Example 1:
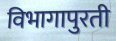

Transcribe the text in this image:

विभागापुरती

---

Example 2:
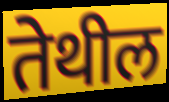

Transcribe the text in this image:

तेथील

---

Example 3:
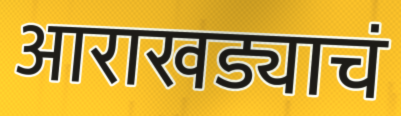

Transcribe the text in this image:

आराखड्याचं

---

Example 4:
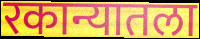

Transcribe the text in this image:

रकान्यातला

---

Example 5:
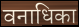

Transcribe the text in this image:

वनाधिका